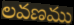
లవణము